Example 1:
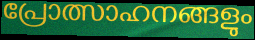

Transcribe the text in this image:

പ്രോത്സാഹനങ്ങളും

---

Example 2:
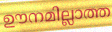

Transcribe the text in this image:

ഊനമില്ലാത്ത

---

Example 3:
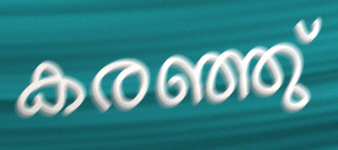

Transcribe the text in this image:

കരഞ്ഞു്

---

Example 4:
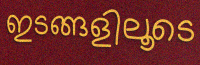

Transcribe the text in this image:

ഇടങ്ങളിലൂടെ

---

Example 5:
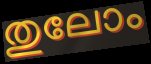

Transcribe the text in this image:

തുലോം